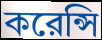
করেন্সি